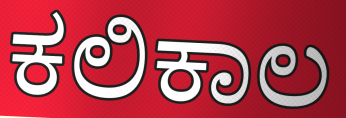
ಕಲಿಕಾಲ